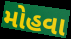
મોહવા